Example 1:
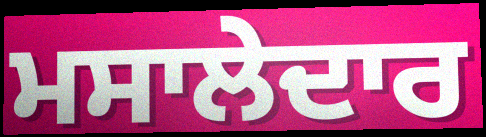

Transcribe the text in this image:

ਮਸਾਲੇਦਾਰ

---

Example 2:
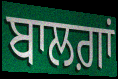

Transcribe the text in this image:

ਬਾਲਗ਼ਾਂ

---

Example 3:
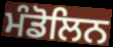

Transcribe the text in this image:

ਮੰਡੋਲਿਨ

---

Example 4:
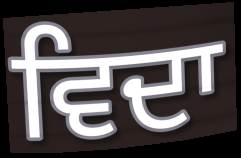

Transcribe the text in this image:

ਵਿਦਾ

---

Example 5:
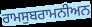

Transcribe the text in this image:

ਰਾਮਸੁਬਰਾਮਨੀਅਨ